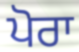
ਪੋਰਾ